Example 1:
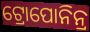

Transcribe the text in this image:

ଟ୍ରୋପୋନିନ୍ର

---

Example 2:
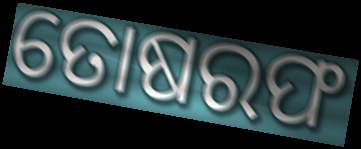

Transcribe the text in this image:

ତୋଷରଫ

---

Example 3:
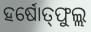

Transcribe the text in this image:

ହର୍ଷୋତ୍‌ଫୁଲ୍ଲ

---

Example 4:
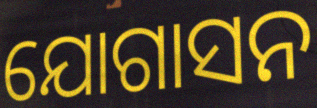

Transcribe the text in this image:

ଯୋଗାସନ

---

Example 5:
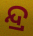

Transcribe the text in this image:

ନ୍ଦ୍ର